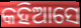
କହିଆସେ